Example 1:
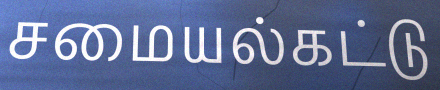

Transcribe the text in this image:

சமையல்கட்டு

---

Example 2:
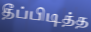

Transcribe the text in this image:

தீப்பிடித்த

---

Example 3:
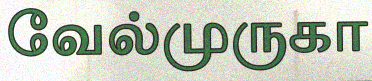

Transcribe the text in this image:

வேல்முருகா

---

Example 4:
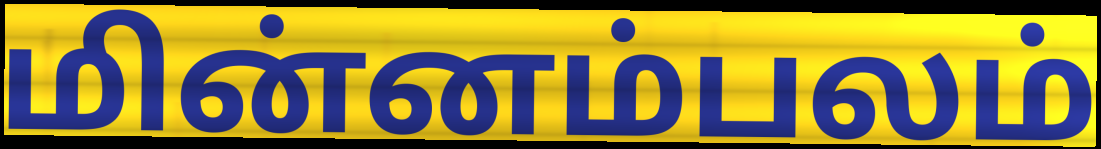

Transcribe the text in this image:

மின்னம்பலம்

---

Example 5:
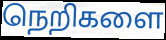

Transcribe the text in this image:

நெறிகளை